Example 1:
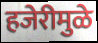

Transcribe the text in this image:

हजेरीमुळे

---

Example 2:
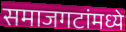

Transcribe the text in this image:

समाजगटांमध्ये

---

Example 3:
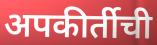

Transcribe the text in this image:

अपकीर्तीची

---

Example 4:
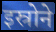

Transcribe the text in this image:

इस्रोने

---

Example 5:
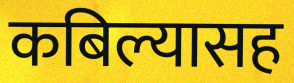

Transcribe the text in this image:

कबिल्यासह